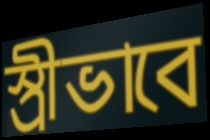
স্ত্রীভাবে